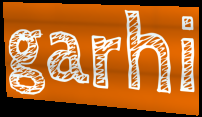
garhi